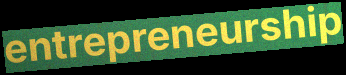
entrepreneurship